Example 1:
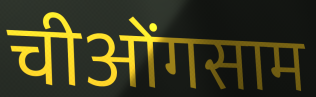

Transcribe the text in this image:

चीओंगसाम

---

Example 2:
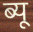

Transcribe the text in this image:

ब्यू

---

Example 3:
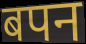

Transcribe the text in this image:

बपन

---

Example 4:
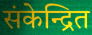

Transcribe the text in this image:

संकेन्द्रित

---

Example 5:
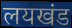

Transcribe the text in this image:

लयखंड